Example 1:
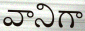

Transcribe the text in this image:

వానిగా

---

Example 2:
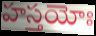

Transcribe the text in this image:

హస్తయోః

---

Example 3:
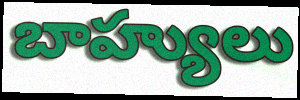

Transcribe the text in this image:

బాహ్యులు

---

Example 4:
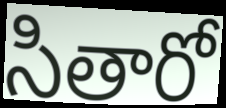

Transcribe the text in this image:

సితారో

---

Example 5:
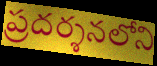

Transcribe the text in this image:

ప్రదర్శనలోని